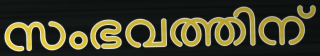
സംഭവത്തിന്